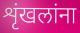
शृंखलांना